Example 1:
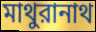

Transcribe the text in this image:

মাথুরানাথ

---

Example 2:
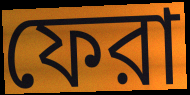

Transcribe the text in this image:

ফেরা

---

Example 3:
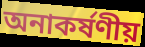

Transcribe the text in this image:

অনাকর্ষণীয়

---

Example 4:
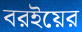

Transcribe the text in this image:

বরইয়ের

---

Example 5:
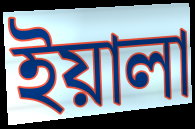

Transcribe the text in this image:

ইয়ালা